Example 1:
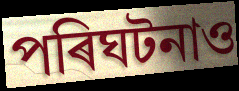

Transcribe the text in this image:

পৰিঘটনাও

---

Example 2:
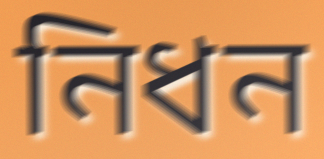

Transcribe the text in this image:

নিধন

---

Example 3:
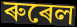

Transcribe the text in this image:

ৰুৰেল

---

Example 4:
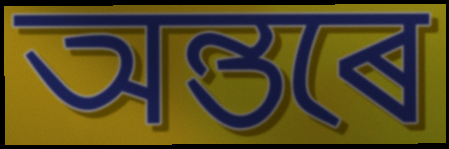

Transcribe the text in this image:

অন্তৰে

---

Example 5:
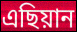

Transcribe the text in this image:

এছিয়ান